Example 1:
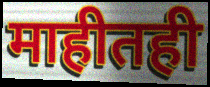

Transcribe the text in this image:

माहीतही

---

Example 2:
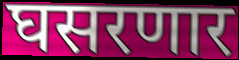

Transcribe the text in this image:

घसरणार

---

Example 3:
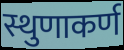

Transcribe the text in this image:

स्थुणाकर्ण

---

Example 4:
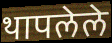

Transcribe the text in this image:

थापलेले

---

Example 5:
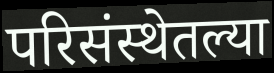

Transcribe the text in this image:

परिसंस्थेतल्या